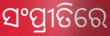
ସଂପ୍ରୀତିରେ